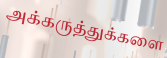
அக்கருத்துக்களை